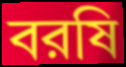
বরষি